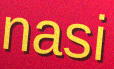
nasi